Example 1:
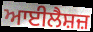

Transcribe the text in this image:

ਆਈਲੈਸ਼ਜ਼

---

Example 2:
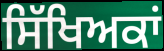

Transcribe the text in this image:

ਸਿੱਖਿਅਕਾਂ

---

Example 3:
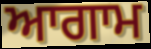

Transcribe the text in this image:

ਆਗਾਮ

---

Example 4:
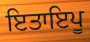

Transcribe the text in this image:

ਇਤਾਇਪੂ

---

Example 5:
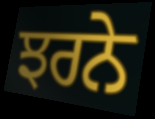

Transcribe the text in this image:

ਝਰਨੇ